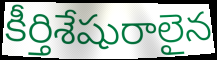
కీర్తిశేషురాలైన